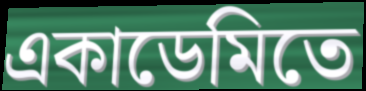
একাডেমিতে